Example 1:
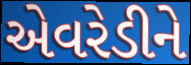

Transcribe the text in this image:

એવરેડીને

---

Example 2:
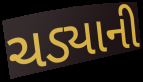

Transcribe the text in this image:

ચડ્યાની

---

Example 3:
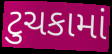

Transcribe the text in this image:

ટુચકામાં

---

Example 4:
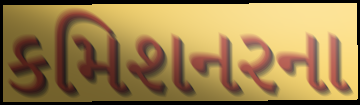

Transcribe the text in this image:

કમિશનરના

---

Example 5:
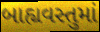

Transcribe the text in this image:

બાહ્યવસ્તુમાં